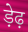
ड़ेढ़